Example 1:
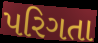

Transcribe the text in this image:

પરિગતા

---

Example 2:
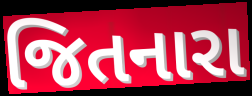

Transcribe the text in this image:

જિતનારા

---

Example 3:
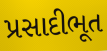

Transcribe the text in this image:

પ્રસાદીભૂત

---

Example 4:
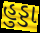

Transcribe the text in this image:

હુડ્ડા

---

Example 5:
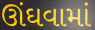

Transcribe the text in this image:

ઊંઘવામાં